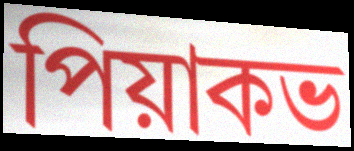
পিয়াকভ